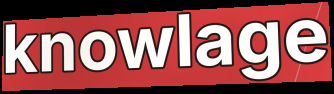
knowlage